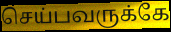
செய்பவருக்கே